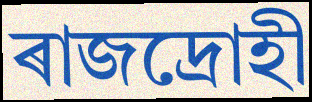
ৰাজদ্ৰোহী